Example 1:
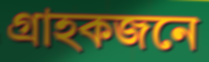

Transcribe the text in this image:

গ্ৰাহকজনে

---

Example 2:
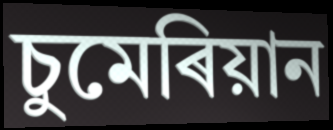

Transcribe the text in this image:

চুমেৰিয়ান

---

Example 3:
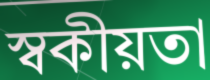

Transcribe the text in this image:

স্বকীয়তা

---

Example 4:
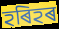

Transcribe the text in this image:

হৰিহৰ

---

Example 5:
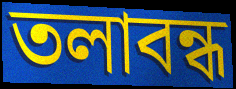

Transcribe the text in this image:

তলাবন্ধ